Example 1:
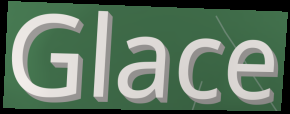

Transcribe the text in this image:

Glace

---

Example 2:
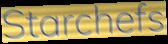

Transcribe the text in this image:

Starchefs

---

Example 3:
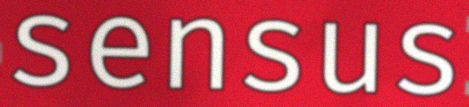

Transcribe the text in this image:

sensus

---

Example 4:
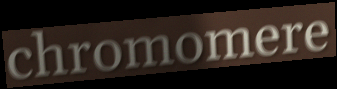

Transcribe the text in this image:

chromomere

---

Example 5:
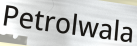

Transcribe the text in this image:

Petrolwala